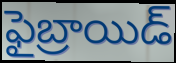
ఫైబ్రాయిడ్